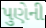
પુણેની